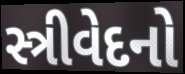
સ્ત્રીવેદનો